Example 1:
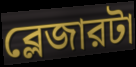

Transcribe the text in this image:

ব্লেজারটা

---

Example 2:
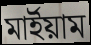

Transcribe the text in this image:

মার্ইয়াম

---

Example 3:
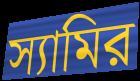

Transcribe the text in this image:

স্যামির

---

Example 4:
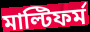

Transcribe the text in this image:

মাল্টিফর্ম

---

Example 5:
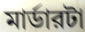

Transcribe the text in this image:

মার্ডারটা